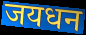
जयधन